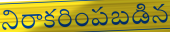
నిరాకరింపబడిన